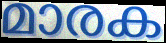
മാരക